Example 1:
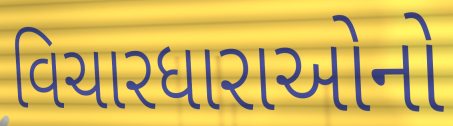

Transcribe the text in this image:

વિચારધારાઓનો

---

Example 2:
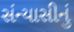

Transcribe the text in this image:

સંન્યાસીનું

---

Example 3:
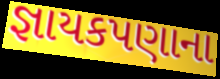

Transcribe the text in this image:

જ્ઞાયકપણાના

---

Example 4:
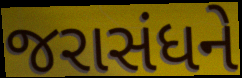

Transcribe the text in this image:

જરાસંધને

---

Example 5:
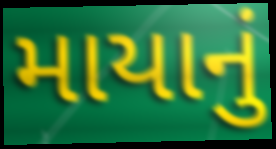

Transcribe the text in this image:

માયાનું